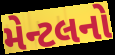
મેન્ટલનો